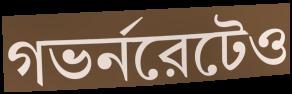
গভর্নরেটেও